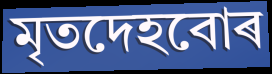
মৃতদেহবোৰ